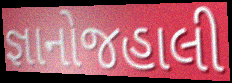
જ્ઞાનોજહાલી